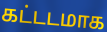
கட்டடமாக